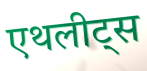
एथलीट्स